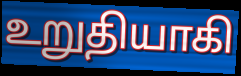
உறுதியாகி